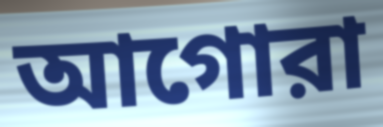
আগোরা